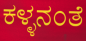
ಕಳ್ಳನಂತೆ